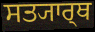
ਸਤ੍ਯਾਰ੍ਥ